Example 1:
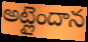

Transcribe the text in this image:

అట్లైందాన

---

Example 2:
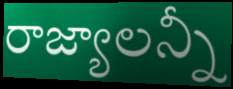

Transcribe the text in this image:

రాజ్యాలన్నీ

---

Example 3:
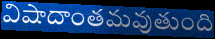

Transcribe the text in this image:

విషాదాంతమవుతుంది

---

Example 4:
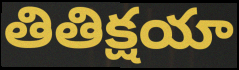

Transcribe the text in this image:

తితిక్షయా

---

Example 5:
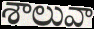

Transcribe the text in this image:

శాలువా